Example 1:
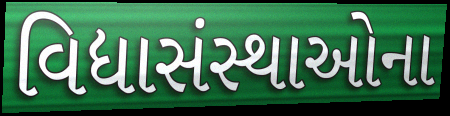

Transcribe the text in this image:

વિદ્યાસંસ્થાઓના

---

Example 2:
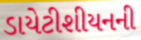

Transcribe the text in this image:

ડાયેટીશીયનની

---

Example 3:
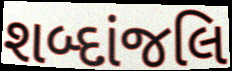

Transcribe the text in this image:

શબ્દાંજલિ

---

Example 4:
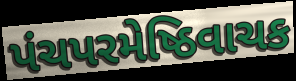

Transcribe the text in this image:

પંચપરમેષ્ઠિવાચક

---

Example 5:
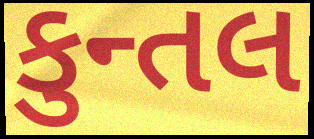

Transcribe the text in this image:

કુન્તલ